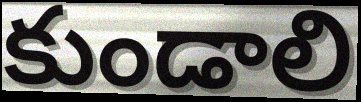
కుండాలి